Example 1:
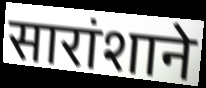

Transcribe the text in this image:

सारांशाने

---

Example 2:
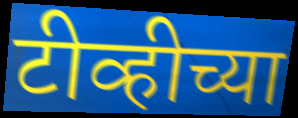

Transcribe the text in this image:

टीव्हीच्या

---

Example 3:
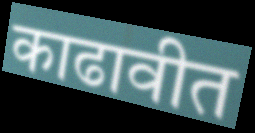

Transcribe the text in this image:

काढावीत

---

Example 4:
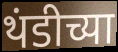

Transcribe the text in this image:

थंडीच्या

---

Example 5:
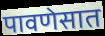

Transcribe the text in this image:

पावणेसात